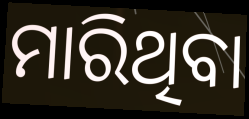
ମାରିଥିବା